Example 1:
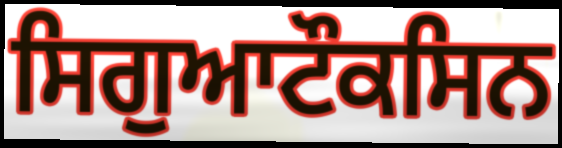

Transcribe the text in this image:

ਸਿਗੁਆਟੌਕਸਿਨ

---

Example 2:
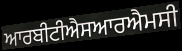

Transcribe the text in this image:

ਆਰਬੀਟੀਐਸਆਰਐਮਸੀ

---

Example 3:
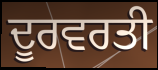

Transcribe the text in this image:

ਦੂਰਵਰਤੀ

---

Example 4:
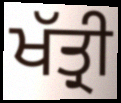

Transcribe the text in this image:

ਖੱਤ੍ਰੀ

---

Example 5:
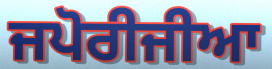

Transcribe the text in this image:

ਜਪੋਰੀਜੀਆ